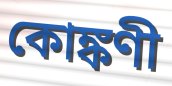
কোঙ্কণী